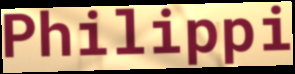
Philippi